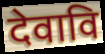
देवावि